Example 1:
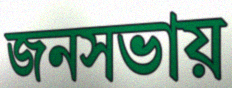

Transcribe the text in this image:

জনসভায়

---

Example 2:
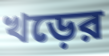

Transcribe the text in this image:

খড়ের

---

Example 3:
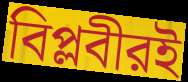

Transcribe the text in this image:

বিপ্লবীরই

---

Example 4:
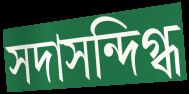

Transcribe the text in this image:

সদাসন্দিগ্ধ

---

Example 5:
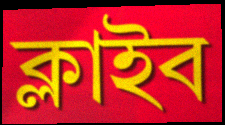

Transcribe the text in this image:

ক্লাইব